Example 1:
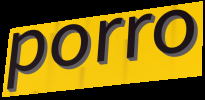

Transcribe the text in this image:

porro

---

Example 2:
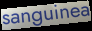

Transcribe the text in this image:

sanguinea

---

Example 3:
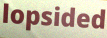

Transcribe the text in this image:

lopsided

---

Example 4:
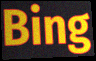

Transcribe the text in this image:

Bing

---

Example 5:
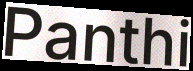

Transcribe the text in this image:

Panthi